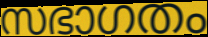
സഭാഗതം